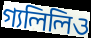
গ্যলিলিও